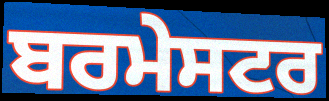
ਬਰਮੇਸਟਰ